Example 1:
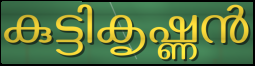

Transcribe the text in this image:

കുട്ടികൃഷ്ണൻ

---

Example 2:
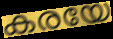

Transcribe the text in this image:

കരയേ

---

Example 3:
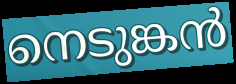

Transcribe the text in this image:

നെടുങ്കൻ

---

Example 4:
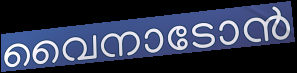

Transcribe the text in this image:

വൈനാടോൻ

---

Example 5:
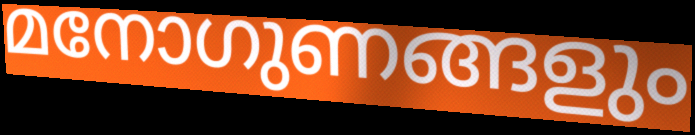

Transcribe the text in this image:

മനോഗുണങ്ങളും